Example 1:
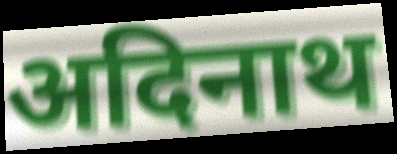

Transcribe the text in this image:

अदिनाथ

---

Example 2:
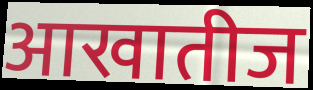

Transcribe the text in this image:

आखातीज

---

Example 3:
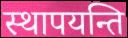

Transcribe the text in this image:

स्थापयन्ति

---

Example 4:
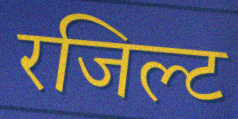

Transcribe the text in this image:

रजिल्ट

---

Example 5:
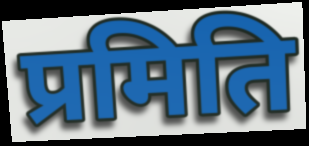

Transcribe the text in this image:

प्रमिति